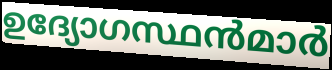
ഉദ്യോഗസ്ഥൻമാർ